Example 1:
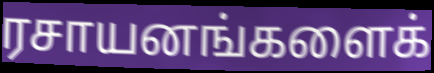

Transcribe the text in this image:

ரசாயனங்களைக்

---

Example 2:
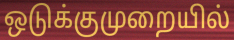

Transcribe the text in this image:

ஒடுக்குமுறையில்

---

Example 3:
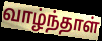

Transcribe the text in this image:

வாழ்ந்தாள்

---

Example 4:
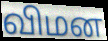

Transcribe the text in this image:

விமன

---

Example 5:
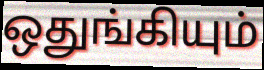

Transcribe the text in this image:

ஒதுங்கியும்